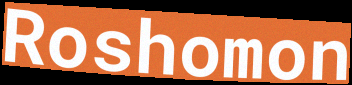
Roshomon